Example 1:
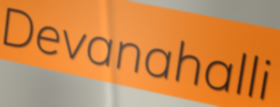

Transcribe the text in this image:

Devanahalli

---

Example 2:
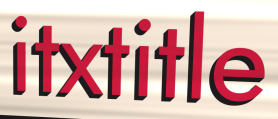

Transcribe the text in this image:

itxtitle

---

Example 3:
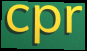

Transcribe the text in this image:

cpr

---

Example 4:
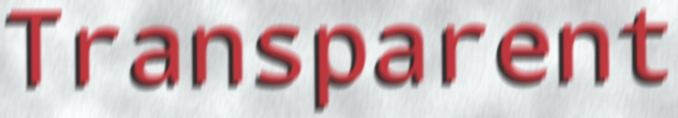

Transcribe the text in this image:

Transparent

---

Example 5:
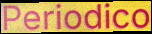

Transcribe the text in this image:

Periodico